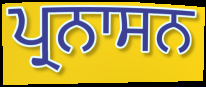
ਪ੍ਰਨਾਸਨ